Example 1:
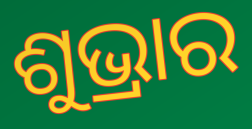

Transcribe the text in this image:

ଶୁଭ୍ରାର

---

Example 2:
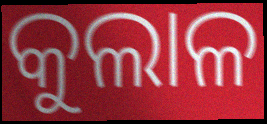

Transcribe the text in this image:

କୁଲାଳ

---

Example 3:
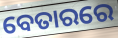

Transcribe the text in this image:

ବେତାରରେ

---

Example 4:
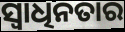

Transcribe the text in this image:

ସ୍ୱାଧିନତାର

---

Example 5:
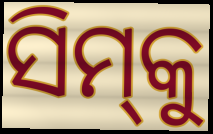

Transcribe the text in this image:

ସିମ୍‌କୁ